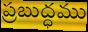
ప్రబుద్ధము